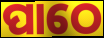
ପାଠେ